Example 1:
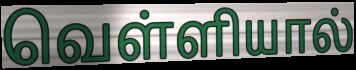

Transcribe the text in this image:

வெள்ளியால்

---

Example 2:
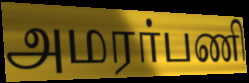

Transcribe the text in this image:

அமரர்பணி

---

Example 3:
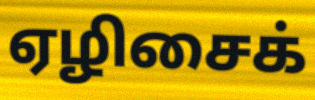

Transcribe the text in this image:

ஏழிசைக்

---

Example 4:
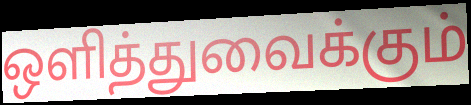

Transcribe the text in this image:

ஒளித்துவைக்கும்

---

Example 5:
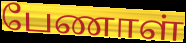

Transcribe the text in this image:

பேணாள்